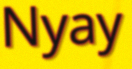
Nyay